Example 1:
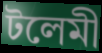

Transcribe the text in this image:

টলেমী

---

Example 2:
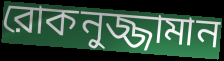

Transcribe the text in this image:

রোকনুজ্জামান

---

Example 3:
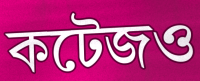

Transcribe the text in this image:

কটেজও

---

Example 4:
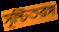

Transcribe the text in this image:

সৃষ্টিতরঙ্গ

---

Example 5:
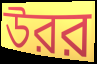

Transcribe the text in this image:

উরর